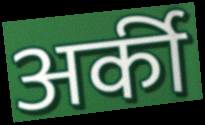
अर्की